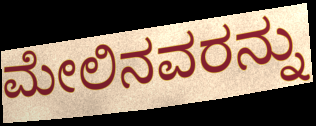
ಮೇಲಿನವರನ್ನು